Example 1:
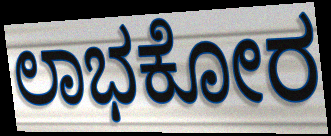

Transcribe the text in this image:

ಲಾಭಕೋರ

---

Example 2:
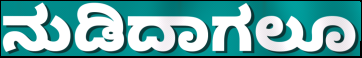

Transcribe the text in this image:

ನುಡಿದಾಗಲೂ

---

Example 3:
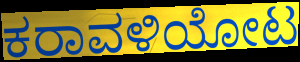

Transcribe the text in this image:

ಕರಾವಳಿಯೋಟ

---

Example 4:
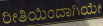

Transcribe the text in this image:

ರೀತಿಯಿಂದಾಗಿಯೇ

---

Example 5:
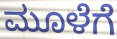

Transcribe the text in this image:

ಮೂಳೆಗೆ